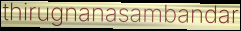
thirugnanasambandar